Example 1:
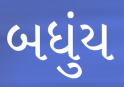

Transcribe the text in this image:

બધુંય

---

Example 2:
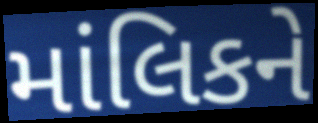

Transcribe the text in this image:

માંલિકને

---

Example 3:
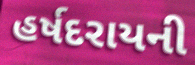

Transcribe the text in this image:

હર્ષદરાયની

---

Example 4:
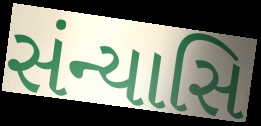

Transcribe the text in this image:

સંન્યાસિ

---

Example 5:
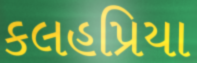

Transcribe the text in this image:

કલહપ્રિયા